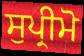
ਸੁਪ੍ਰੀਮੋ